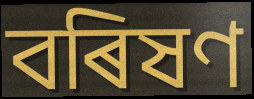
বৰিষণ